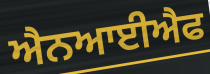
ਐਨਆਈਐਫ